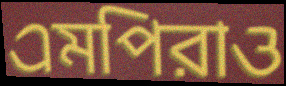
এমপিরাও